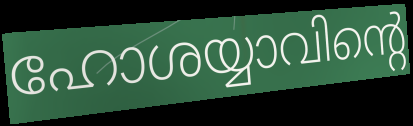
ഹോശയ്യാവിന്റെ